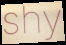
shy